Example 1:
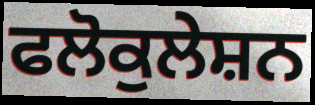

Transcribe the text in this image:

ਫਲੋਕੁਲੇਸ਼ਨ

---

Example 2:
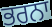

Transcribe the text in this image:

ਭਰਨਾ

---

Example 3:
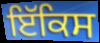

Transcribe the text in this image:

ਇੱਕਿਸ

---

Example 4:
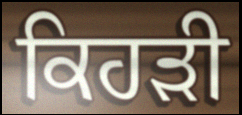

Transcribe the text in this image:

ਕਿਹੜੀ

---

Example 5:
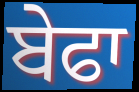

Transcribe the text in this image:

ਬੇਫਾ